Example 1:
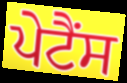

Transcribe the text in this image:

ਪੇਟੈਂਸ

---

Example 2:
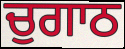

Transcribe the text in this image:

ਚੁਗਾਠ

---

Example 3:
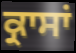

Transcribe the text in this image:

ਕ੍ਰਾਸਾਂ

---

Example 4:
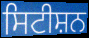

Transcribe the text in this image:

ਸਿਟੀਸ਼ਨ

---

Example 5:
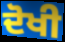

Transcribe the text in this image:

ਦੋਖੀ